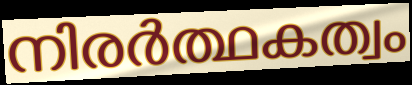
നിരർത്ഥകത്വം